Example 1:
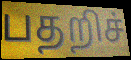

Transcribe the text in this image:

பதறிச்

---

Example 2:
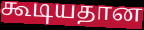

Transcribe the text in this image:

கூடியதான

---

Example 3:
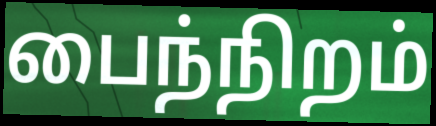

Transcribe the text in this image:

பைந்நிறம்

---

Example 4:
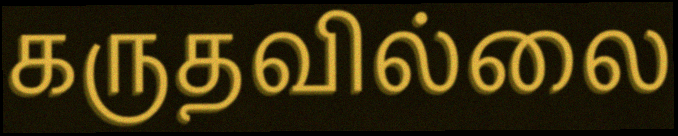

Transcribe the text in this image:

கருதவில்லை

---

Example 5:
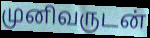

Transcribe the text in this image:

முனிவருடன்